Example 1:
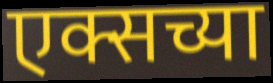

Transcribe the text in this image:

एक्सच्या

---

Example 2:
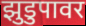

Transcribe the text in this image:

झुडुपावर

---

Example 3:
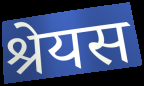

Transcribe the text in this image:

श्रेयस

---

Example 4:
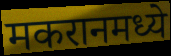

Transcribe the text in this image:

मकरानमध्ये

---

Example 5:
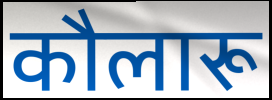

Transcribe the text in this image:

कौलारू